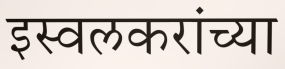
इस्वलकरांच्या